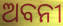
ଅବନୀ